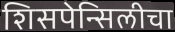
शिसपेन्सिलीचा